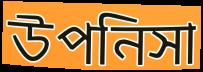
উপনিসা